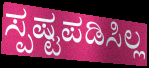
ಸ್ಪಷ್ಟಪಡಿಸಿಲ್ಲ